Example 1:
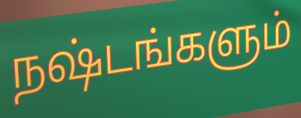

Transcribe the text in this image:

நஷ்டங்களும்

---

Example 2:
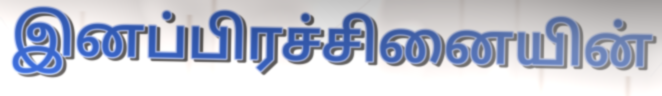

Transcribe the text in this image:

இனப்பிரச்சினையின்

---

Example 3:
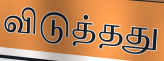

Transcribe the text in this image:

விடுத்தது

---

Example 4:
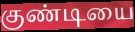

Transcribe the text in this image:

குண்டியை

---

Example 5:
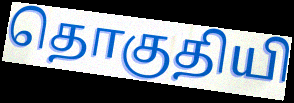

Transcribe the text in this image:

தொகுதியி